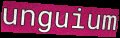
unguium